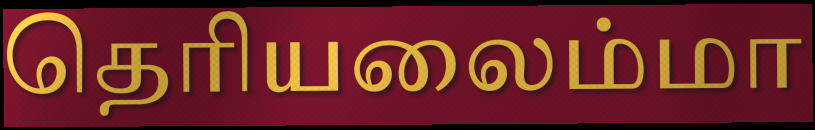
தெரியலைம்மா